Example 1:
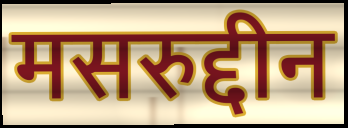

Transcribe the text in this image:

मसरुद्दीन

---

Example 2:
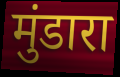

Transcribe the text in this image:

मुंडारा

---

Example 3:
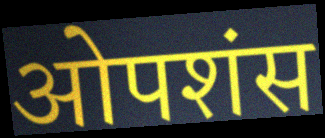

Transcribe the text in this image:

ओपशंस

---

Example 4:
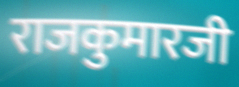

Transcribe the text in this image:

राजकुमारजी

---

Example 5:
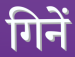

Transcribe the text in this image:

गिनें